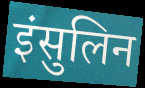
इंसुलिन